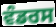
ਵੰਡਰਸ